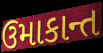
ઉમાકાન્ત